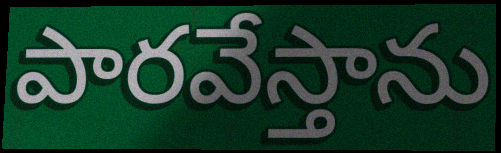
పారవేస్తాను